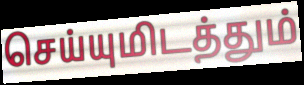
செய்யுமிடத்தும்